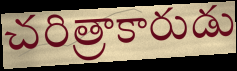
చరిత్రాకారుడు